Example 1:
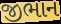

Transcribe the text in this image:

જીભાન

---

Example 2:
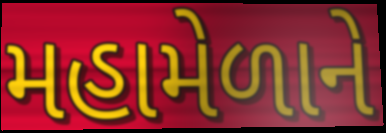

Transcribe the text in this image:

મહામેળાને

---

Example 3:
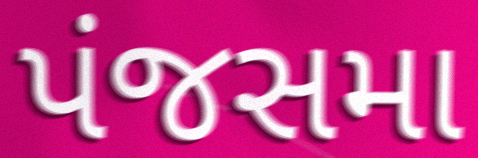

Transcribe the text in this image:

પંજસમા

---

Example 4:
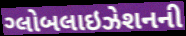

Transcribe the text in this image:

ગ્લોબલાઇઝેશનની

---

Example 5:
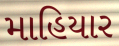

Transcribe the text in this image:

માહિયાર